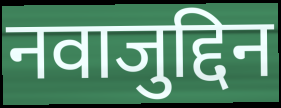
नवाजुद्दिन